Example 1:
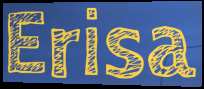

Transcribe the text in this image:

Erisa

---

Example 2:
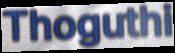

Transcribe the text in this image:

Thoguthi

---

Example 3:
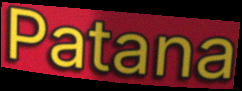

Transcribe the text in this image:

Patana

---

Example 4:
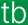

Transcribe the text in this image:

tb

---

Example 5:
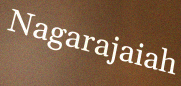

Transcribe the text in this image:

Nagarajaiah